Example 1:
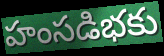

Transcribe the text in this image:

హంసడిభకు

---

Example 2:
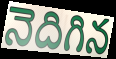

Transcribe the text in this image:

నెదిగిన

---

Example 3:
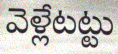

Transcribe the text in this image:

వెళ్లేటట్టు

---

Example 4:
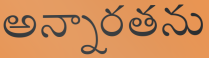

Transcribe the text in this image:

అన్నారతను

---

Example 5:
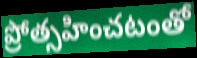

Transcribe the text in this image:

ప్రోత్సహించటంతో